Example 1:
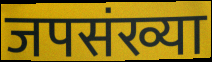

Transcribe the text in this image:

जपसंख्या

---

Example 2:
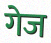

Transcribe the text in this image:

गेज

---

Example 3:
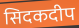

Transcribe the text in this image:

सिदकदीप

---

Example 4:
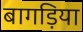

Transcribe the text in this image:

बागड़िया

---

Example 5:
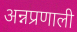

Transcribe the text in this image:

अन्नप्रणाली